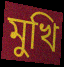
মুখি